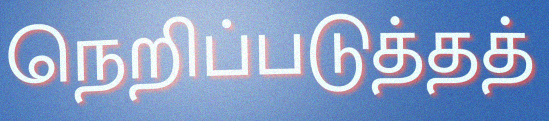
நெறிப்படுத்தத்